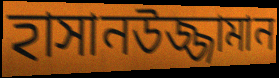
হাসানউজ্জামান